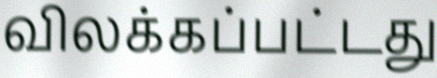
விலக்கப்பட்டது